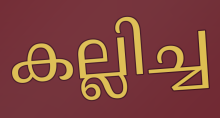
കല്ലിച്ച